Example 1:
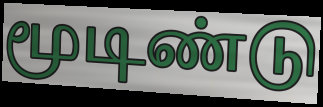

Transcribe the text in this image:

மூடிண்டு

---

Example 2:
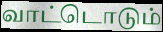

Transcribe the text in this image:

வாட்டொடும்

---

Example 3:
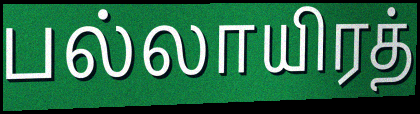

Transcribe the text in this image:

பல்லாயிரத்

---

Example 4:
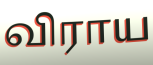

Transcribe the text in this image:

விராய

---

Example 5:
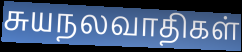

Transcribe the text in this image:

சுயநலவாதிகள்